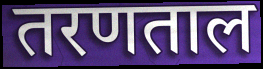
तरणताल